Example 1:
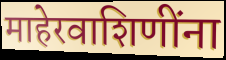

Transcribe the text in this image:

माहेरवाशिणींना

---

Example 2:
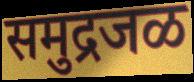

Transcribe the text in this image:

समुद्रजळ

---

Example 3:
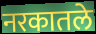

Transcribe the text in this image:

नरकातले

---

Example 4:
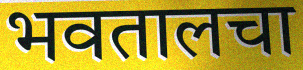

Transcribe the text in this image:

भवतालचा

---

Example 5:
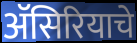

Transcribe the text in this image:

ॲसिरियाचे